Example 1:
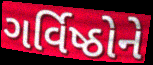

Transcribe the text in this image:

ગર્વિષ્ઠોને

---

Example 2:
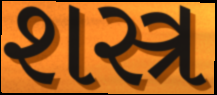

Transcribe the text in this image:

શસ્ત્ર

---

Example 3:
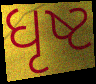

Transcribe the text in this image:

ધૃષ્ટ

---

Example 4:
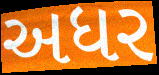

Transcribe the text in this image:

અધર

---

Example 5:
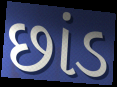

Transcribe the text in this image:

છાંડ